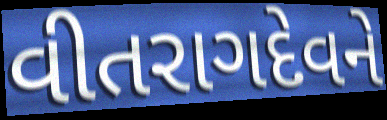
વીતરાગદેવને